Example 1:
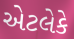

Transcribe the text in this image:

એટલેકે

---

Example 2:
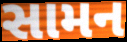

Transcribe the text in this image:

સામન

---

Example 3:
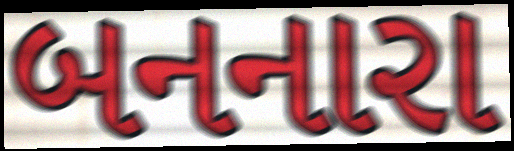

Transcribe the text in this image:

બનનારા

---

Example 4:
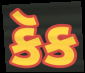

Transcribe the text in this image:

કૅક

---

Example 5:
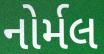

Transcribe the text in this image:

નોર્મલ